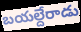
బయల్దేరాడు